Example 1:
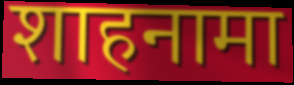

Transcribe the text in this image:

शाहनामा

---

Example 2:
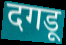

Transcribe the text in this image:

दगडू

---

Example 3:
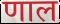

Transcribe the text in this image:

णाल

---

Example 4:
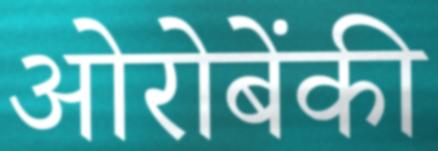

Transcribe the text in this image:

ओरोबेंकी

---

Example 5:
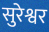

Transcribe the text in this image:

सुरेश्वर